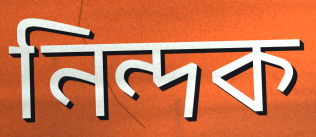
নিন্দক